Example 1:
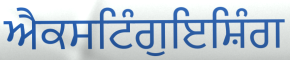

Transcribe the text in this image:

ਐਕਸਟਿੰਗੁਇਸ਼ਿੰਗ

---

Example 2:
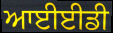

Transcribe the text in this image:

ਆਈਈਡੀ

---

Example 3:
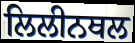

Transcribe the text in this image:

ਲਿਲੀਨਥਲ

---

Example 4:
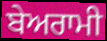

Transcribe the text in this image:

ਬੇਅਰਾਮੀ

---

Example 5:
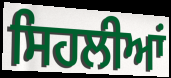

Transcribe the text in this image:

ਸਿਹਲੀਆਂ